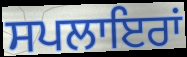
ਸਪਲਾਇਰਾਂ